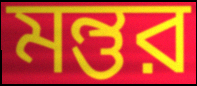
মন্তুর